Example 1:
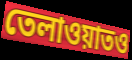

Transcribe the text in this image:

তেলাওয়াতও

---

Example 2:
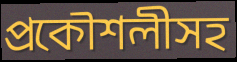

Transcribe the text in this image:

প্রকৌশলীসহ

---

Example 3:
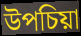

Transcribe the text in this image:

উপচিয়া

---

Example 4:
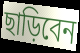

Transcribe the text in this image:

ছাড়িবেন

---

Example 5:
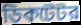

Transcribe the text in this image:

ডিকটেটর